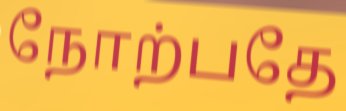
நோற்பதே